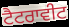
ਟੈਟਰਾਵੀਟ